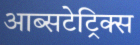
आब्सटेट्रिक्स